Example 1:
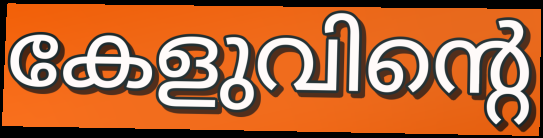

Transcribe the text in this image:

കേളുവിന്റെ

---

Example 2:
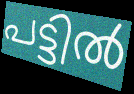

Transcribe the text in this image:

പട്ടിൽ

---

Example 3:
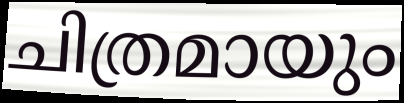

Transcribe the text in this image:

ചിത്രമായും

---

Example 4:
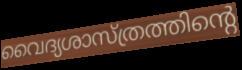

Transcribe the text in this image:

വൈദ്യശാസ്ത്രത്തിന്റെ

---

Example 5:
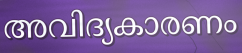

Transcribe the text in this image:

അവിദ്യകാരണം